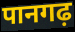
पानगढ़